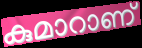
കുമാറാണ്